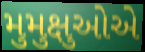
મુમુક્ષુઓએ